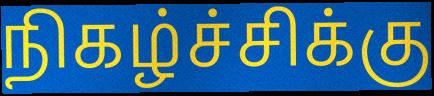
நிகழ்ச்சிக்கு